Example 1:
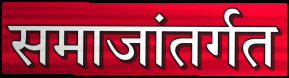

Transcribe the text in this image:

समाजांतर्गत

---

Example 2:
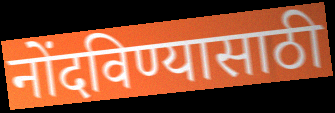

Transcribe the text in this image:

नोंदविण्यासाठी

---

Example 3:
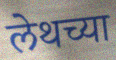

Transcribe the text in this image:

लेथच्या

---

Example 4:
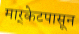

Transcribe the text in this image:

मार्केटपासून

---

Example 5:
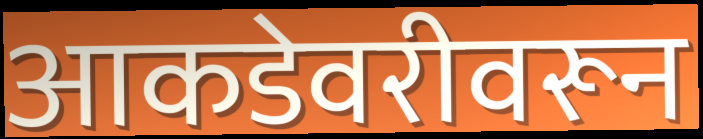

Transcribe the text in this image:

आकडेवरीवरून